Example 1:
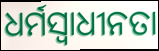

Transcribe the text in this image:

ଧର୍ମସ୍ୱାଧୀନତା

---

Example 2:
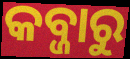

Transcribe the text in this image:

କବ୍ଜାରୁ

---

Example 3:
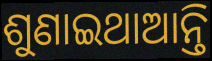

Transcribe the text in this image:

ଶୁଣାଇଥାଆନ୍ତି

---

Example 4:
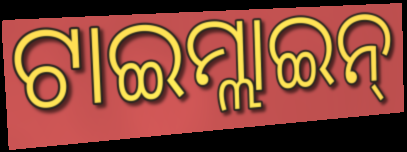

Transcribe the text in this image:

ଟାଇମ୍ଲାଇନ୍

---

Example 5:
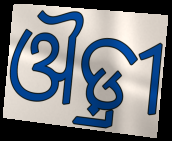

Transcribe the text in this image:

ଔଡ଼୍ରୀ